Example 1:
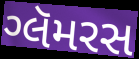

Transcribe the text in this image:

ગ્લૅમરસ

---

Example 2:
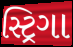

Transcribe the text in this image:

સ્ટ્રિગા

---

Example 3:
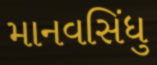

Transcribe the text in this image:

માનવસિંધુ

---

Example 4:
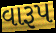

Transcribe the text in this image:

વારૂપ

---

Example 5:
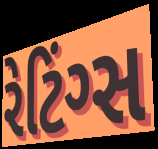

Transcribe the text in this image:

રેટિંગ્સ